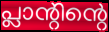
പ്ലാന്റിന്റെ